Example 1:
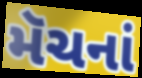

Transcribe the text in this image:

મૅચનાં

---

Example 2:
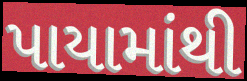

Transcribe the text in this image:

પાયામાંથી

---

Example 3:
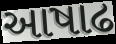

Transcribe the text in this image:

આષાઢ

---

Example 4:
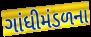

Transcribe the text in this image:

ગાંધીમંડળના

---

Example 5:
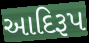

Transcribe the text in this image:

આદિરૂપ